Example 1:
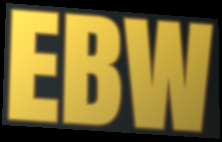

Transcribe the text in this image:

EBW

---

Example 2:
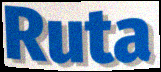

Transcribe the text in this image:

Ruta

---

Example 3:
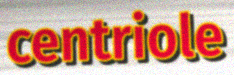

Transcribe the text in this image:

centriole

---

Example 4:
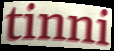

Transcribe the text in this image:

tinni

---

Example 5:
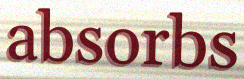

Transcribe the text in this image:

absorbs